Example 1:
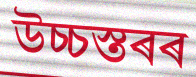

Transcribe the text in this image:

উচ্চস্তৰৰ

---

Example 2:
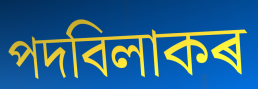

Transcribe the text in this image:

পদবিলাকৰ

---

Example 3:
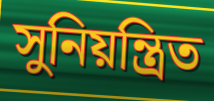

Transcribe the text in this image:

সুনিয়ন্ত্ৰিত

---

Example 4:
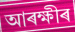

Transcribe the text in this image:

আৰক্ষীৰ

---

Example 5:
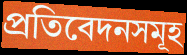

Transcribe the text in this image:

প্ৰতিবেদনসমূহ